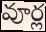
వూర్ల